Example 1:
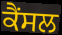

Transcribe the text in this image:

ਕੈਂਸਲ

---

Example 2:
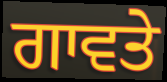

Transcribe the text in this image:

ਗਾਵਤੇ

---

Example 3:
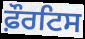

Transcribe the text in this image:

ਫ਼ੌਰਟਿਸ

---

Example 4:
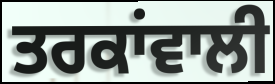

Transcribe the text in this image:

ਤਰਕਾਂਵਾਲੀ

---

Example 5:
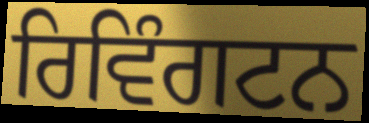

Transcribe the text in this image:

ਰਿਵਿੰਗਟਨ